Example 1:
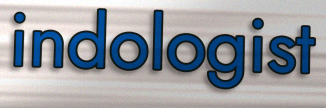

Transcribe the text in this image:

indologist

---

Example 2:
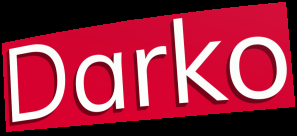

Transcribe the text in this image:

Darko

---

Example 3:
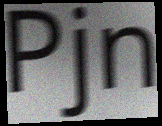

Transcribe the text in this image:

Pjn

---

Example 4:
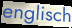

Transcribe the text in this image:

englisch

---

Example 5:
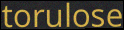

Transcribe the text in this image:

torulose